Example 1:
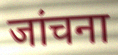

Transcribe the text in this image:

जांचना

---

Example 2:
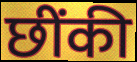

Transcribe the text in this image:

छींकी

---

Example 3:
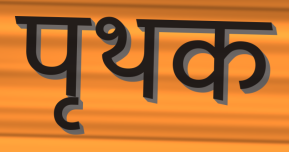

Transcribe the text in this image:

पृथक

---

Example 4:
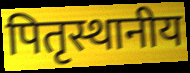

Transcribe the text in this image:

पितृस्थानीय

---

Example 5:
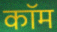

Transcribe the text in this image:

कॉम